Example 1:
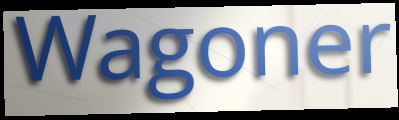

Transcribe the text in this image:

Wagoner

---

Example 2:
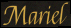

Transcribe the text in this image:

Mariel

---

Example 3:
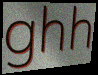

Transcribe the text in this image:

ghh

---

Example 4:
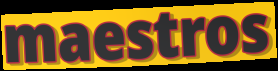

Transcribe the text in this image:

maestros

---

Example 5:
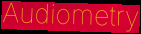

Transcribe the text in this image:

Audiometry